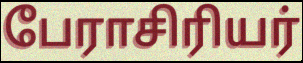
பேராசிரியர்